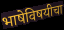
भाषेविषयीचा